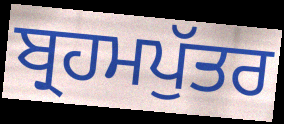
ਬ੍ਰਹਮਪੁੱਤਰ